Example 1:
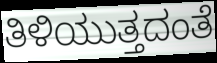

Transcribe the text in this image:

ತಿಳಿಯುತ್ತದಂತೆ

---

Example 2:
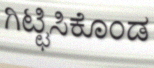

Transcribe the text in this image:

ಗಿಟ್ಟಿಸಿಕೊಂಡ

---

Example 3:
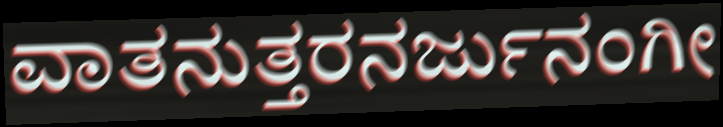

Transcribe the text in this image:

ವಾತನುತ್ತರನರ್ಜುನಂಗೀ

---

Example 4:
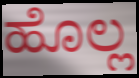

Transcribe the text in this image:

ಹೊಲ್ಲ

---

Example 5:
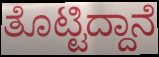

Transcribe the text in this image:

ತೊಟ್ಟಿದ್ದಾನೆ